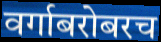
वर्गाबरोबरच